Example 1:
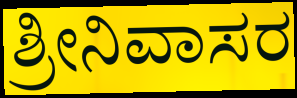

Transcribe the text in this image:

ಶ್ರೀನಿವಾಸರ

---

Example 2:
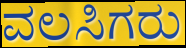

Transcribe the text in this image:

ವಲಸಿಗರು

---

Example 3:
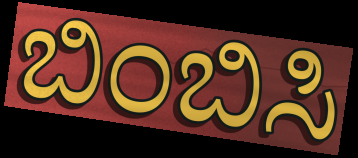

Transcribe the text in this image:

ಬಿಂಬಿಸಿ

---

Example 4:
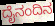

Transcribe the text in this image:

ದೈನಂದಿನ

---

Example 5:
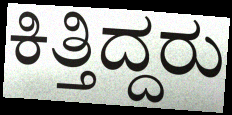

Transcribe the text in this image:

ಕಿತ್ತಿದ್ದರು